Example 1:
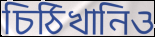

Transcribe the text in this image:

চিঠিখানিও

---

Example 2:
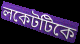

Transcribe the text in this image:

লকেটটিকে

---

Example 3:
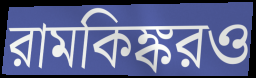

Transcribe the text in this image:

রামকিঙ্করও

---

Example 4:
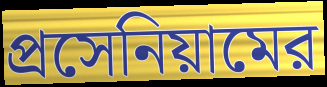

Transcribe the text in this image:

প্রসেনিয়ামের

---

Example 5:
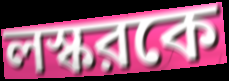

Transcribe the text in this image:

লস্করকে